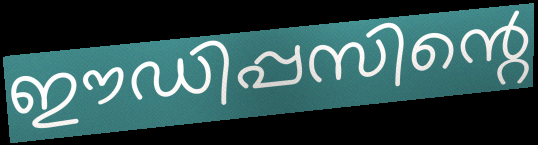
ഈഡിപ്പസിന്റെ